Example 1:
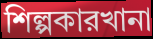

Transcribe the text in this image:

শিল্পকারখানা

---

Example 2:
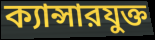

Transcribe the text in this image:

ক্যান্সারযুক্ত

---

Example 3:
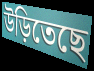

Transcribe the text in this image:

উড়িতেছে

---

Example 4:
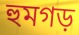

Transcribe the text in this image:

হুমগড়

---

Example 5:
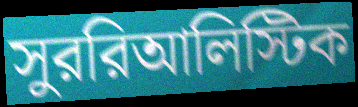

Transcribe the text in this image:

সুররিআলিস্টিক